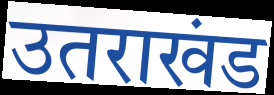
उतराखंड